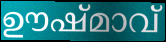
ഊഷ്മാവ്